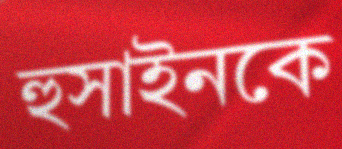
হুসাইনকে